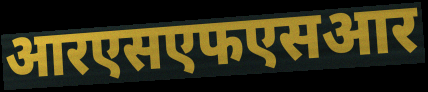
आरएसएफएसआर